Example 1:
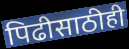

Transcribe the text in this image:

पिढीसाठीही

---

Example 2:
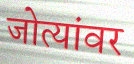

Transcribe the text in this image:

जोत्यांवर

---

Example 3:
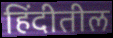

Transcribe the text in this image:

हिंदीतील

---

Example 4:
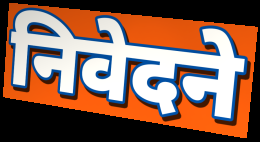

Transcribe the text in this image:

निवेदने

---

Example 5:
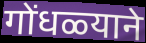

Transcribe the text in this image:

गोंधळ्याने